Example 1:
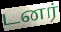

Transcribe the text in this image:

டனர்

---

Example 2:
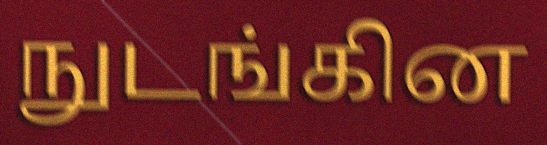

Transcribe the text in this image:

நுடங்கின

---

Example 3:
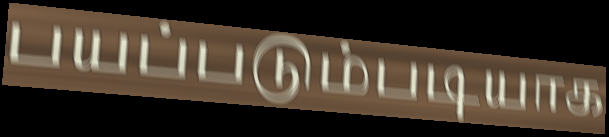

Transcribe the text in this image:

பயப்படும்படியாக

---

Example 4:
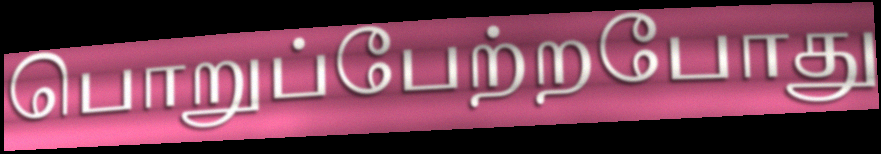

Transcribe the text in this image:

பொறுப்பேற்றபோது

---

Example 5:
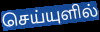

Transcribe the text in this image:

செய்யுளில்